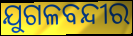
ଯୁଗଳବନ୍ଦୀର